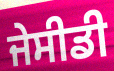
ਜੇਸੀਡੀ